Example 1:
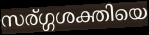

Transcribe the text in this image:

സര്ഗ്ഗശക്തിയെ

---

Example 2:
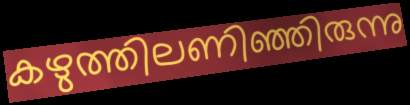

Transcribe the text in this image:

കഴുത്തിലണിഞ്ഞിരുന്നു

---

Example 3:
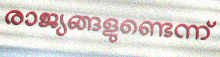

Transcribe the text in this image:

രാജ്യങ്ങളുണ്ടെന്ന്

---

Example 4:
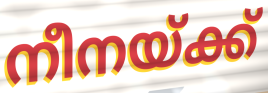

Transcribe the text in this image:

നീനയ്ക്ക്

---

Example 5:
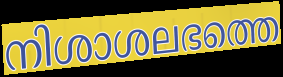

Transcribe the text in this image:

നിശാശലഭത്തെ